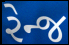
રેન્જ